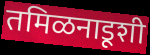
तमिळनाडूशी